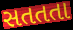
સતતતા